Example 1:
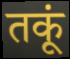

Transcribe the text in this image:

तकूं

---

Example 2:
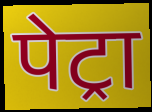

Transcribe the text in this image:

पेट्रा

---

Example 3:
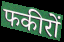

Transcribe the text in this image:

फकीरों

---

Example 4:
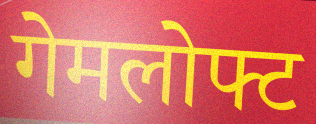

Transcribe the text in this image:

गेमलोफ्ट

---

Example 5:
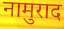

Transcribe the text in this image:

नामुराद